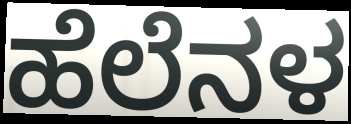
ಹೆಲೆನಳ